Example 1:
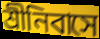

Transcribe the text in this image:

শ্ৰীনিবাসে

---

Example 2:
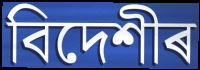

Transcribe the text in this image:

বিদেশীৰ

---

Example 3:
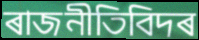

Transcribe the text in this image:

ৰাজনীতিবিদৰ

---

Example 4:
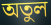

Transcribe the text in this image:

অতুল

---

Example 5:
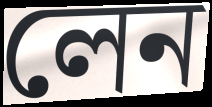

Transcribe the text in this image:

লেন